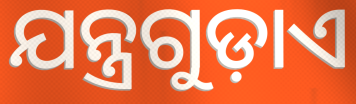
ଯନ୍ତ୍ରଗୁଡ଼ାଏ